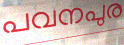
പവനപുര